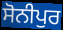
ਸੋਨੀਪੁਰ